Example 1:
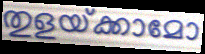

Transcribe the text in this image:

തുളയ്‌ക്കാമോ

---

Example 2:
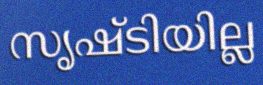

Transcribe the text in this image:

സൃഷ്ടിയില്ല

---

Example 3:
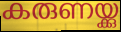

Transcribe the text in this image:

കരുണയ്ക്കു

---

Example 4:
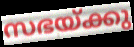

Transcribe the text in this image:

സഭയ്ക്കു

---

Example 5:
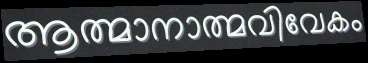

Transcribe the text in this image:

ആത്മാനാത്മവിവേകം